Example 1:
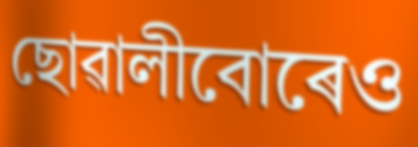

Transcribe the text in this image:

ছোৱালীবোৰেও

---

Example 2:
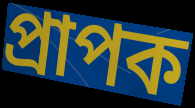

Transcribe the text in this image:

প্ৰাপক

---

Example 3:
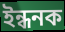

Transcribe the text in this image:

ইন্ধনক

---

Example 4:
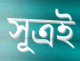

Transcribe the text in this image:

সূত্ৰই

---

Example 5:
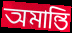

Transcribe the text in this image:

অমান্তি